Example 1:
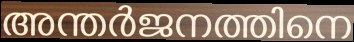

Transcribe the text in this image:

അന്തർജനത്തിനെ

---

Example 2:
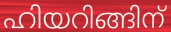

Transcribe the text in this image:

ഹിയറിങ്ങിന്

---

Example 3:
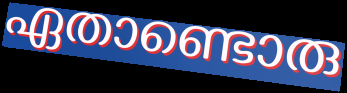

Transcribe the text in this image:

ഏതാണ്ടൊരു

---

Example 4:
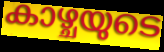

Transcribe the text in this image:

കാഴ്ചയുടെ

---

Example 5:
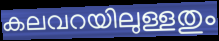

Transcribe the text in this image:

കലവറയിലുള്ളതും